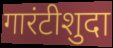
गारंटीशुदा